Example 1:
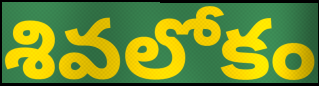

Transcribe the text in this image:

శివలోకం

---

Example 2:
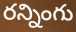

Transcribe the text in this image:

రన్నింగు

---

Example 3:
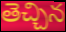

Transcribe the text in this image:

తెచ్చిన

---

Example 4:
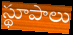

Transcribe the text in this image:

స్థూపాలు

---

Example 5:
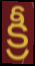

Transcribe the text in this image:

క్రీ